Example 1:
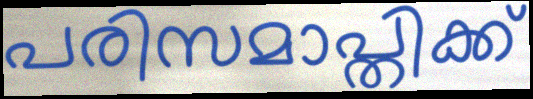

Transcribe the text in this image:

പരിസമാപ്തിക്ക്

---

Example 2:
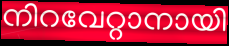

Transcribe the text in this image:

നിറവേറ്റാനായി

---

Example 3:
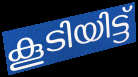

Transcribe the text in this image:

കൂടിയിട്ട്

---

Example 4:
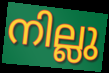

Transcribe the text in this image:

നില്ലു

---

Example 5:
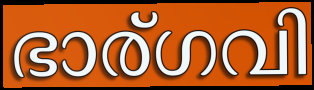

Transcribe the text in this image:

ഭാര്ഗവി